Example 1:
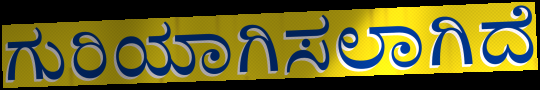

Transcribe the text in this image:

ಗುರಿಯಾಗಿಸಲಾಗಿದೆ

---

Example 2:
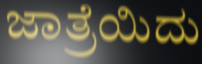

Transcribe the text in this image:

ಜಾತ್ರೆಯಿದು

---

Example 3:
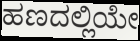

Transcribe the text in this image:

ಹಣದಲ್ಲಿಯೇ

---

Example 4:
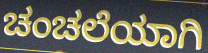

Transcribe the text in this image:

ಚಂಚಲೆಯಾಗಿ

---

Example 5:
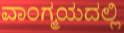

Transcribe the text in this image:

ವಾಂಗ್ಮಯದಲ್ಲಿ